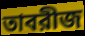
তাবরীজ